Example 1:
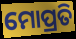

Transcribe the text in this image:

ମୋପ୍ରତି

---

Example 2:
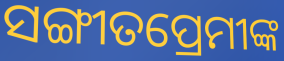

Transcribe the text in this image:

ସଙ୍ଗୀତପ୍ରେମୀଙ୍କ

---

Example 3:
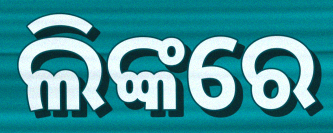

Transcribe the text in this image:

ଲିଙ୍କରେ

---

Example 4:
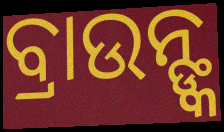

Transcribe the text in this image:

ବ୍ରାଉନ୍ଙ୍କ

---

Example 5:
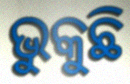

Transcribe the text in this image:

ଭୁକୁଛି